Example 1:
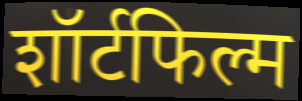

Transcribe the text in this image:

शॉर्टफिल्म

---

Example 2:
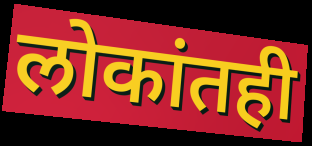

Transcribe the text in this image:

लोकांतही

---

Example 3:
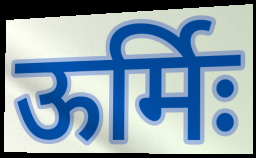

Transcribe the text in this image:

ऊर्मिः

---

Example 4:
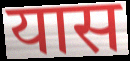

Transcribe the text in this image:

यास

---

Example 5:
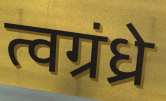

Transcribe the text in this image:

त्वग्रंध्रे